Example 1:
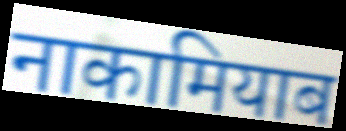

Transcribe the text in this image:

नाकामियाब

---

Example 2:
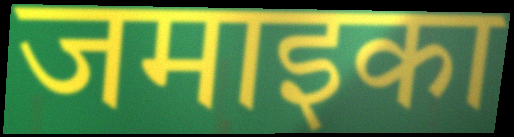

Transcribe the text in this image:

जमाइका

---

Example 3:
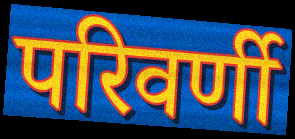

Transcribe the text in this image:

परिवर्णी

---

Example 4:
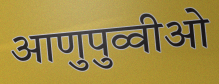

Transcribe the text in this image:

आणुपुव्वीओ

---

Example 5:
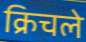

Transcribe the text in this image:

क्रिचले